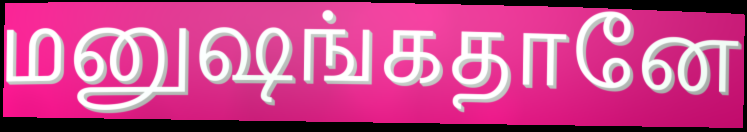
மனுஷங்கதானே